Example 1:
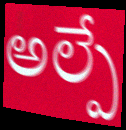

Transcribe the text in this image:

అల్పే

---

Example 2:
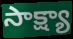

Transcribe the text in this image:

సాక్ష్యా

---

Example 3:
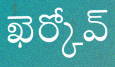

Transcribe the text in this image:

ఖెర్కోవ్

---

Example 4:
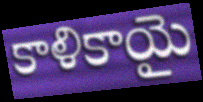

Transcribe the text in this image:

కాళికాయై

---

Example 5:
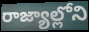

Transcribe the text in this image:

రాజ్యాల్లోని